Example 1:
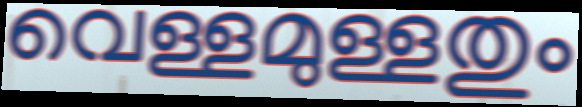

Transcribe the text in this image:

വെള്ളമുള്ളതും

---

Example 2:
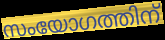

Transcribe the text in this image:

സംയോഗത്തിന്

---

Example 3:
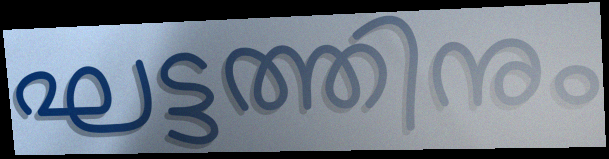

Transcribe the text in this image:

ഘട്ടത്തിനും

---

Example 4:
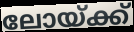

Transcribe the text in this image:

ലോയ്ക്ക്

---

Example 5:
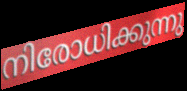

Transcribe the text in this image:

നിരോധിക്കുന്നു